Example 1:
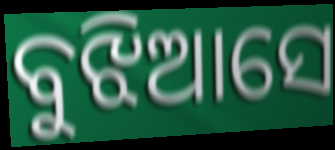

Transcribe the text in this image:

ବୁଝିଆସେ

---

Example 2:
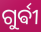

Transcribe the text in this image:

ଗୁର୍ଵୀ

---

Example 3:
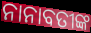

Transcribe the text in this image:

ନାନାବତୀଙ୍କ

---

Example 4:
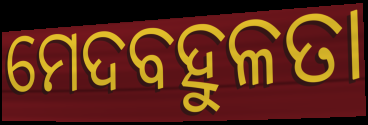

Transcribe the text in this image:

ମେଦବହୁଳତା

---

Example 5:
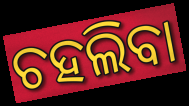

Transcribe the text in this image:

ଚହଲିବା